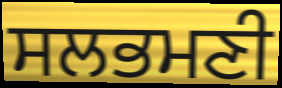
ਸਲਭਮਣੀ